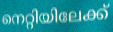
നെറ്റിയിലേക്ക്